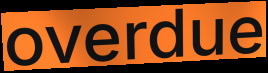
overdue